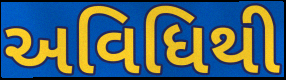
અવિધિથી